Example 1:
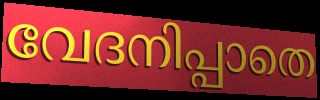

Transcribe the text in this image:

വേദനിപ്പാതെ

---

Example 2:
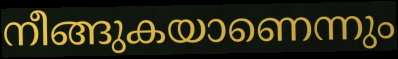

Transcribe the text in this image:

നീങ്ങുകയാണെന്നും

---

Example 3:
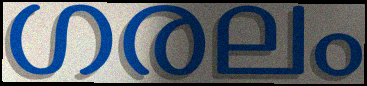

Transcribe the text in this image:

ഗരലം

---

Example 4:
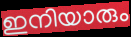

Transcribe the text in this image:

ഇനിയാരും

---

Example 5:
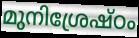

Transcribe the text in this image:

മുനിശ്രേഷ്ഠം